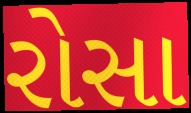
રોસા